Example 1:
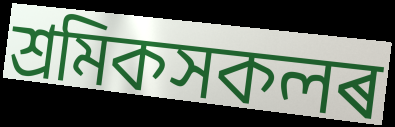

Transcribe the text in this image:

শ্ৰমিকসকলৰ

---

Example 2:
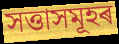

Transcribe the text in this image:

সত্তাসমূহৰ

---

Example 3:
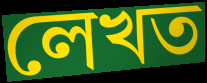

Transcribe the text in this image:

লেখত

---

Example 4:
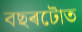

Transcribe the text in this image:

বছৰটোত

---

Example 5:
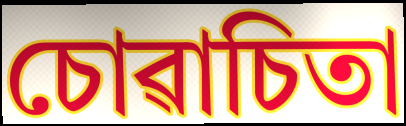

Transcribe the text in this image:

চোৱাচিতা